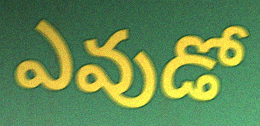
ఎవుడో